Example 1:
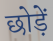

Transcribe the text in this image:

छोड़ें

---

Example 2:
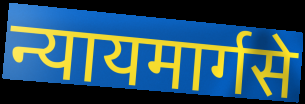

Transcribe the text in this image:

न्यायमार्गसे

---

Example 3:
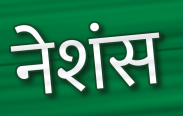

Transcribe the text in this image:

नेशंस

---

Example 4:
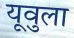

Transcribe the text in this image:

यूवुला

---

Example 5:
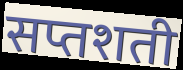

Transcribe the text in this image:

सप्तशती